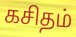
கசிதம்